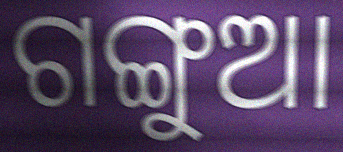
ଗଙ୍ଗୁଆ